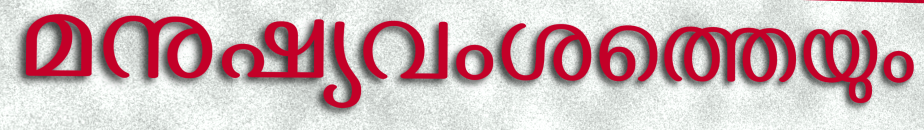
മനുഷ്യവംശത്തെയും